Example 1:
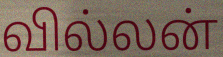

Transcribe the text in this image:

வில்லன்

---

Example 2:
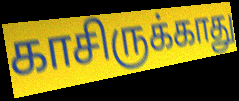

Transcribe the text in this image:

காசிருக்காது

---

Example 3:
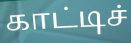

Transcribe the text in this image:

காட்டிச்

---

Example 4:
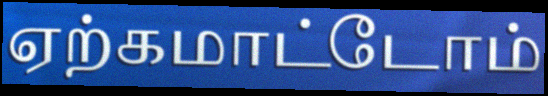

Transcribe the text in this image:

ஏற்கமாட்டோம்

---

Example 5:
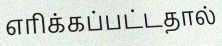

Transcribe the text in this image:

எரிக்கப்பட்டதால்